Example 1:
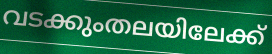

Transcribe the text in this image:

വടക്കുംതലയിലേക്ക്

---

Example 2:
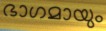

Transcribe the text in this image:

ഭാഗമായും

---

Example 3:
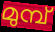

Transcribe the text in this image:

മുമ്പ്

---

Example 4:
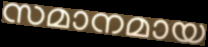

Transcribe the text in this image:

സമാനമായ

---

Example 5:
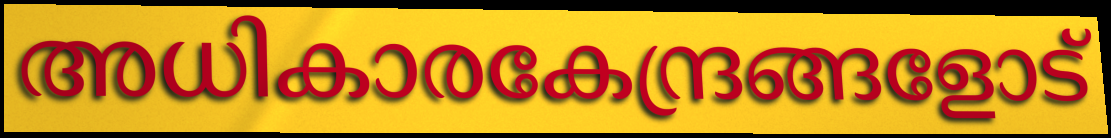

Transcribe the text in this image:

അധികാരകേന്ദ്രങ്ങളോട്